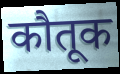
कौतूक